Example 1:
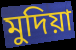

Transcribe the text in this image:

মুদিয়া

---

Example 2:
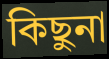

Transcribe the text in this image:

কিছুনা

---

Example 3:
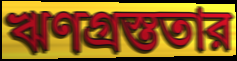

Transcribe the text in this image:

ঋণগ্রস্ততার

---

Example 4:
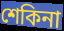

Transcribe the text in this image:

শেকিনা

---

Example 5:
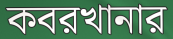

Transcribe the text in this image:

কবরখানার